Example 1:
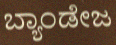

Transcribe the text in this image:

ಬ್ಯಾಂಡೇಜ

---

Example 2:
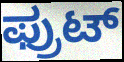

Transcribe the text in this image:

ಫ್ರುಟ್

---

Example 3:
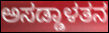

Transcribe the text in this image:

ಅಸಡ್ಡಾಳತನ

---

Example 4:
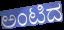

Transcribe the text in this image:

ಅಂಟಿದ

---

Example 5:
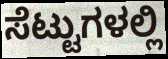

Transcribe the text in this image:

ಸೆಟ್ಟುಗಳಲ್ಲಿ